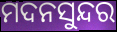
ମଦନସୁନ୍ଦର